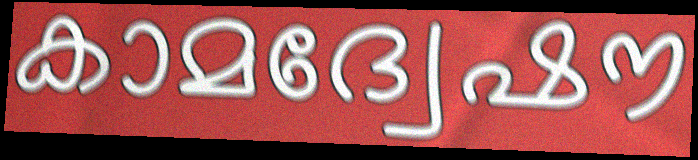
കാമദ്വേഷൗ